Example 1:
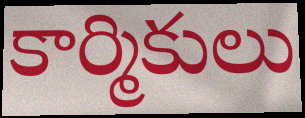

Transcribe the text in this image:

కార్మికులు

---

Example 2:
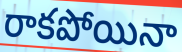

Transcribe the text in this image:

రాకపోయినా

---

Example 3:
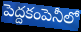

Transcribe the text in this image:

పెద్దకంపెనీలో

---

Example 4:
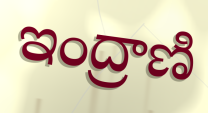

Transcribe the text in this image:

ఇంద్రాణి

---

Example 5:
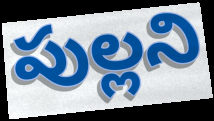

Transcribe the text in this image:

పుల్లని